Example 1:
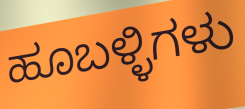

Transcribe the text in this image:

ಹೂಬಳ್ಳಿಗಳು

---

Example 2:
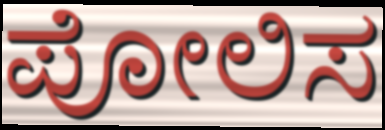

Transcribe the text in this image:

ಪೋಲಿಸ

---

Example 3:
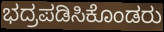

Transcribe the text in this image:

ಭದ್ರಪಡಿಸಿಕೊಂಡರು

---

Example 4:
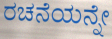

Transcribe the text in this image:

ರಚನೆಯನ್ನೇ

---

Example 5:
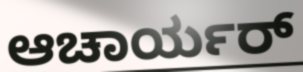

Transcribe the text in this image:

ಆಚಾರ್ಯರ್